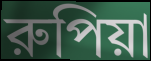
রুপিয়া